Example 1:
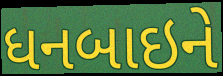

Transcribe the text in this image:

ધનબાઇને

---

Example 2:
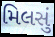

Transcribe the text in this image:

મિલસું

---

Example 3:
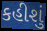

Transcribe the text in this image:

કહીશું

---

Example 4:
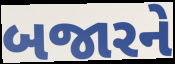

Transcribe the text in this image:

બજારને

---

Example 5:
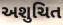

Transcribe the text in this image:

અશુચિત